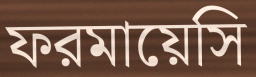
ফরমায়েসি